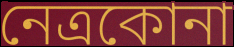
নেত্রকোনা